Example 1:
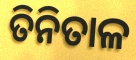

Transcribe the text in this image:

ତିନିତାଳ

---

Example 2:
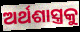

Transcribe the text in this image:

ଅର୍ଥଶାସ୍ତ୍ରକୁ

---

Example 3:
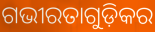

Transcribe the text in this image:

ଗଭୀରତାଗୁଡ଼ିକର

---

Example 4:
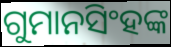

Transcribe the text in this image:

ଗୁମାନସିଂହଙ୍କ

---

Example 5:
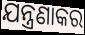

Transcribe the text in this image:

ଯନ୍ତ୍ରଣାକର